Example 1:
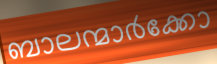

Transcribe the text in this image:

ബാലന്മാർക്കോ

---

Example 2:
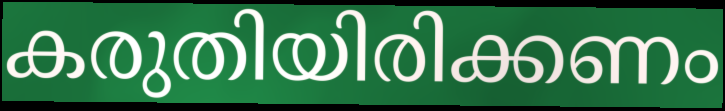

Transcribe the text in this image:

കരുതിയിരിക്കണം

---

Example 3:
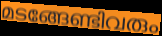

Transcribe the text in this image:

മടങ്ങേണ്ടിവരും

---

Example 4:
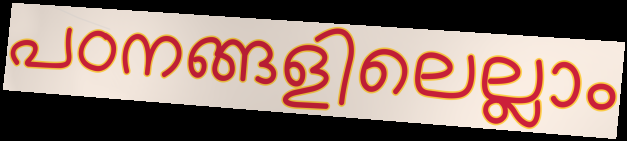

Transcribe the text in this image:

പഠനങ്ങളിലെല്ലാം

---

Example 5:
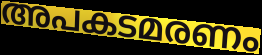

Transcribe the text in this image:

അപകടമരണം